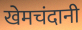
खेमचंदानी